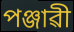
পঞ্জাৱী